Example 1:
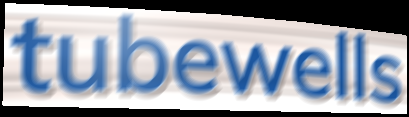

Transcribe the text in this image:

tubewells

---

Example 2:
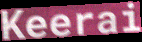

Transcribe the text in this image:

Keerai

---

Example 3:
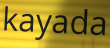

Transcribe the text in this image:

kayada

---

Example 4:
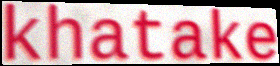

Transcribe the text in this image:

khatake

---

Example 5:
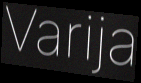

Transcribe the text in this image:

Varija